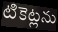
టికెట్లను